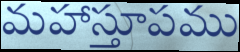
మహాస్తూపము